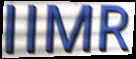
IIMR